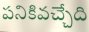
పనికివచ్చేది